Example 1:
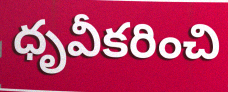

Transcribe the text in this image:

ధృవీకరించి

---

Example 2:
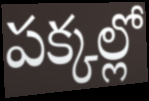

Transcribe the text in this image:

పక్కల్లో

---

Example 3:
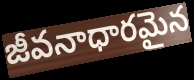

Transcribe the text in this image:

జీవనాధారమైన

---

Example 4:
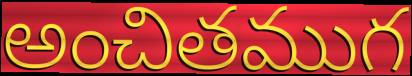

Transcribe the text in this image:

అంచితముగ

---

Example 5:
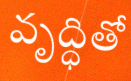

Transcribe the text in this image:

వృద్ధితో